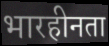
भारहीनता